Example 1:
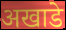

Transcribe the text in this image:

अखाडे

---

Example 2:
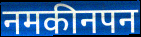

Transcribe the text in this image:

नमकीनपन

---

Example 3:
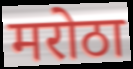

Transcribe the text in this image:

मरोठा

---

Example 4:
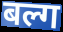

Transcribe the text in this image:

बल्ग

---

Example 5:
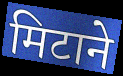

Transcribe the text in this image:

मिटाने